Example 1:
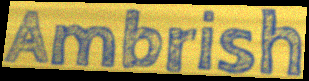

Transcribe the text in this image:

Ambrish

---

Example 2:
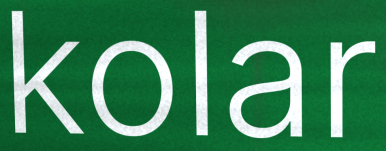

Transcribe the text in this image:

kolar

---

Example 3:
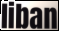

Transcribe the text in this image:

liban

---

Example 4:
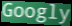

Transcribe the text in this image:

Googly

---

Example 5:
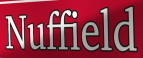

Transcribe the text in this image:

Nuffield